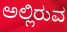
ಅಲ್ಲಿರುವ